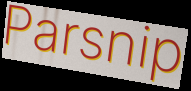
Parsnip